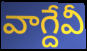
వాగ్దేవీ